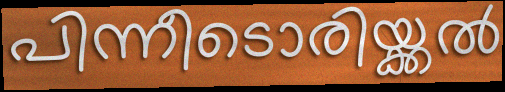
പിന്നീടൊരിയ്ക്കൽ